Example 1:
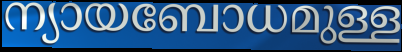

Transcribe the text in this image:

ന്യായബോധമുള്ള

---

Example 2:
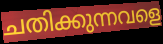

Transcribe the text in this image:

ചതിക്കുന്നവളെ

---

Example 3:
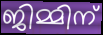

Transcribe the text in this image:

ജിമ്മിന്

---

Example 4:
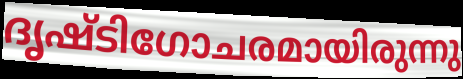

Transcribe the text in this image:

ദൃഷ്ടിഗോചരമായിരുന്നു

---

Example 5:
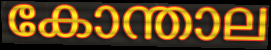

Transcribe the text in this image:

കോന്താല